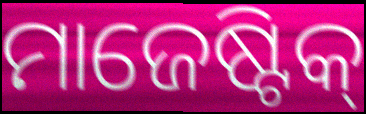
ମାଜେଷ୍ଟିକ୍